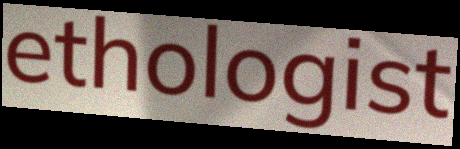
ethologist